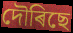
দৌৰিছে